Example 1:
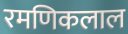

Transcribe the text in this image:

रमणिकलाल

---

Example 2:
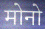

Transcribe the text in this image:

मोनो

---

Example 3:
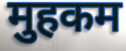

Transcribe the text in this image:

मुहकम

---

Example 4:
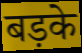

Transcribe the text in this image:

बड़के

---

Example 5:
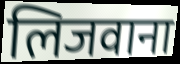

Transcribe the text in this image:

लिजवाना